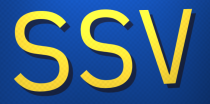
SSV